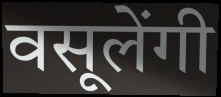
वसूलेंगी